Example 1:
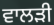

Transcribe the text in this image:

ਵਾਲੜੀ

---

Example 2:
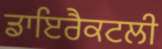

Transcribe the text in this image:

ਡਾਇਰੈਕਟਲੀ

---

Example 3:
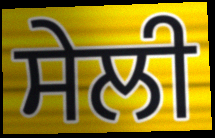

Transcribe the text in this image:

ਸੇਲੀ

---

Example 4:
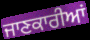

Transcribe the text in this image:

ਜਾਣਕਾਰੀਆਂ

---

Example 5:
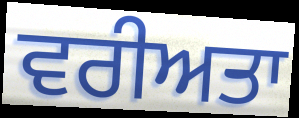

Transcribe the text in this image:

ਵਰੀਅਤਾ